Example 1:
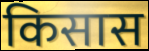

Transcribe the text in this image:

किसास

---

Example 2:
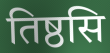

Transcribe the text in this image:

तिष्ठसि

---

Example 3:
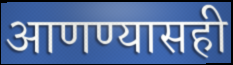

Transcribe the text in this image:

आणण्यासही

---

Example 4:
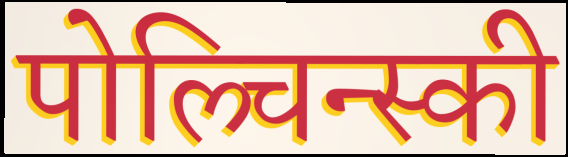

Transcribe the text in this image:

पोल्चिन्स्की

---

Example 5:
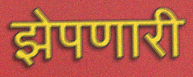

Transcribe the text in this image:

झेपणारी